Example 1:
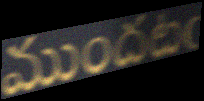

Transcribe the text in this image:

ముందటఁ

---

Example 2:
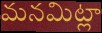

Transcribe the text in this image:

మనమిట్లా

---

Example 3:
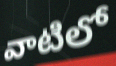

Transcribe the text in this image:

వాటిలో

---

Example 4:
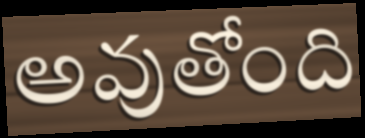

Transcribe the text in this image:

అవుతోంది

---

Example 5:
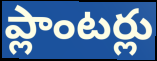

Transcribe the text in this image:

ప్లాంటర్లు